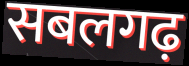
सबलगढ़